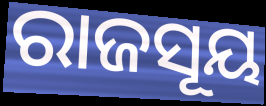
ରାଜସୂୟ